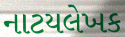
નાટયલેખક